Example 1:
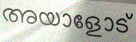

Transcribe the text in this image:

അയാളോട്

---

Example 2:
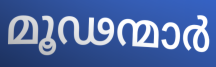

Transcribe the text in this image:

മൂഢന്മാർ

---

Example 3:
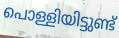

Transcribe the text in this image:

പൊള്ളിയിട്ടുണ്ട്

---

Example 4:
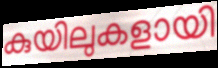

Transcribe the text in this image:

കുയിലുകളായി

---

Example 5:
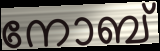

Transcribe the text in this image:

നോബ്